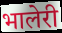
भालेरी